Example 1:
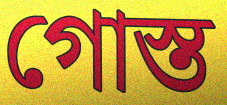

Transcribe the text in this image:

গোস্ত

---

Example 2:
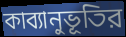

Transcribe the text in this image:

কাব্যানুভূতির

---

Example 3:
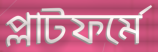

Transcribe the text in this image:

প্লাটফর্মে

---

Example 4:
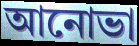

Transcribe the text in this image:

আনোভা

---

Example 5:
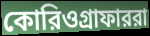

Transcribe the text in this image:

কোরিওগ্রাফাররা